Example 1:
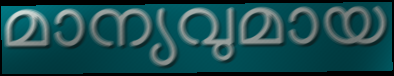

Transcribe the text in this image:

മാന്യവുമായ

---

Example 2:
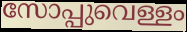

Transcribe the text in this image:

സോപ്പുവെള്ളം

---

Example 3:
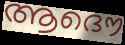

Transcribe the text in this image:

ആദൌ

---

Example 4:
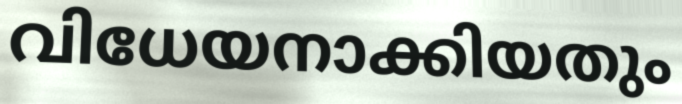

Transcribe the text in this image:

വിധേയനാക്കിയതും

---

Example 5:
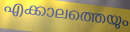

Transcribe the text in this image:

എക്കാലത്തെയും